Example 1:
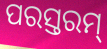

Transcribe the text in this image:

ପରସ୍ତରମ୍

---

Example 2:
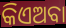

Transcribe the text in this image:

କିଏଅବା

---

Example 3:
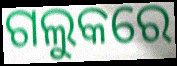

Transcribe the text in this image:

ଗଲୁକରେ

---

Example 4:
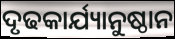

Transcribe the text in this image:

ଦୃଢକାର୍ଯ୍ୟାନୁଷ୍ଠାନ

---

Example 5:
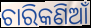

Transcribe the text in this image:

ଚାରିକଣିଆଁ